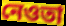
নেওতা